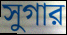
সুগার